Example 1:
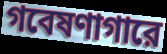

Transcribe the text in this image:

গবেষণাগারে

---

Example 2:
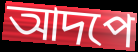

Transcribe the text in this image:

আদপে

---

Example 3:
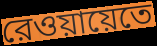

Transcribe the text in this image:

রেওয়ায়েতে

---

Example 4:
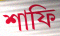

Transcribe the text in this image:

শাফি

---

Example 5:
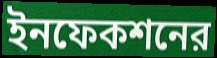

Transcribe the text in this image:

ইনফেকশনের